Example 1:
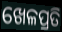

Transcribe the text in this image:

ଖେଳପ୍ରତି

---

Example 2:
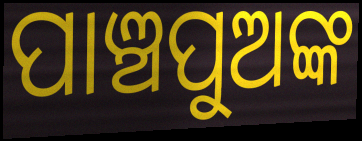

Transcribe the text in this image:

ପାଞ୍ଚପୁଅଙ୍କ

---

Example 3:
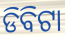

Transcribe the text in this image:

ଡିବିଟା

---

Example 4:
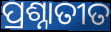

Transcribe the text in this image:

ପ୍ରଶ୍ନାତୀତ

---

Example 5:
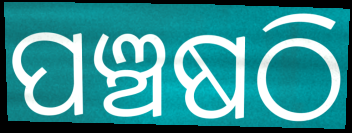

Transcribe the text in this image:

ପଞ୍ଚଷଠି